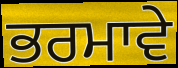
ਭਰਮਾਵੇ